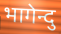
भागेन्दु